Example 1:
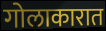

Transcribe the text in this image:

गोलाकारात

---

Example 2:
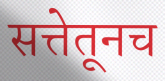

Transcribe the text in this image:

सत्तेतूनच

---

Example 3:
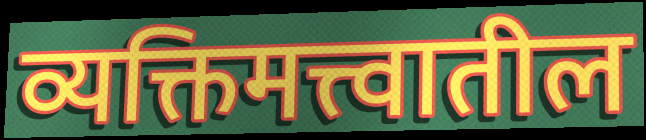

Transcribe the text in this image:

व्यक्तिमत्त्वातील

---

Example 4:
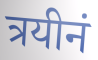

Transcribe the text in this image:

त्रयीनं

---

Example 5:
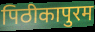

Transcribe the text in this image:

पिठीकापुरम